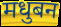
मधुबन